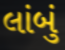
લાંબું